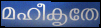
മഹീകൃതേ